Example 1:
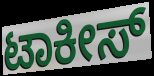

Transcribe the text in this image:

ಟಾಕೀಸ್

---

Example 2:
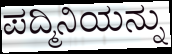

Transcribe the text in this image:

ಪದ್ಮಿನಿಯನ್ನು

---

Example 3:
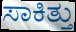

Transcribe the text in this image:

ಸಾಕಿತ್ತು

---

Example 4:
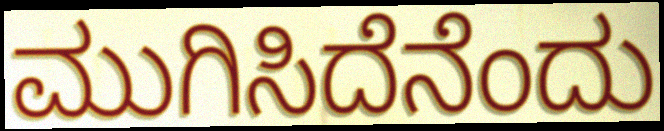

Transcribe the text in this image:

ಮುಗಿಸಿದೆನೆಂದು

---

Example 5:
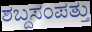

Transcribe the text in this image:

ಶಬ್ದಸಂಪತ್ತು